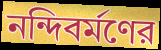
নন্দিবর্মণের